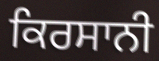
ਕਿਰਸਾਨੀ